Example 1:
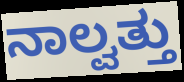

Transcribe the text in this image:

ನಾಲ್ವತ್ತು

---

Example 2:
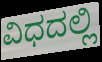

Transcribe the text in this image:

ವಿಧದಲ್ಲಿ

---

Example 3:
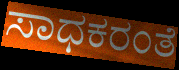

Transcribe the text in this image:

ಸಾಧಕರಂತೆ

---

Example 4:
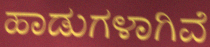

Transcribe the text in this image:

ಹಾಡುಗಳಾಗಿವೆ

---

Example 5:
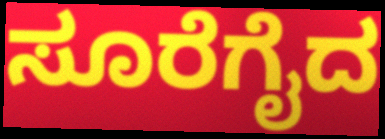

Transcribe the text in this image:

ಸೂರೆಗೈದ